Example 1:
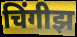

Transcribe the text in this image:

चिंगीझ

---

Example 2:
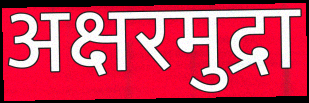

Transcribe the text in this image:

अक्षरमुद्रा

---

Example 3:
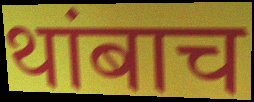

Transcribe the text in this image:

थांबाच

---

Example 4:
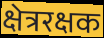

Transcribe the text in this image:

क्षेत्ररक्षक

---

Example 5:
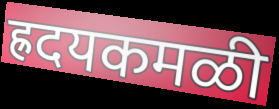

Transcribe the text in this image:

ह्रदयकमळी